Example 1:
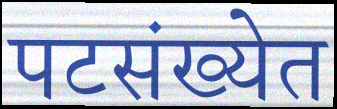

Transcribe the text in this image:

पटसंख्येत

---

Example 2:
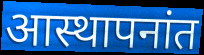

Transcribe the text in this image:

आस्थापनांत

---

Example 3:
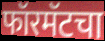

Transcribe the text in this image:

फॉरमॅटचा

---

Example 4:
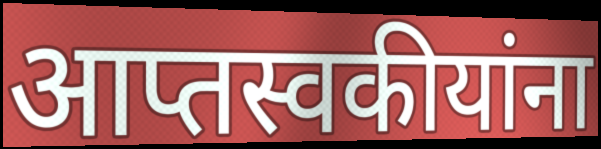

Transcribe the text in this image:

आप्तस्वकीयांना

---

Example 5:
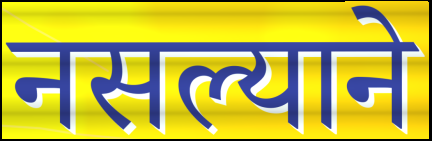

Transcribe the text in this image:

नसल्याने